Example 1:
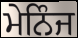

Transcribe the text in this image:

ਮੇਨਿੰਜ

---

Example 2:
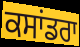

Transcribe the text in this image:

ਕਸਾਂਡਰਾ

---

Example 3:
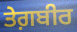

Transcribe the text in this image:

ਤੇਗ਼ਬੀਰ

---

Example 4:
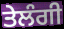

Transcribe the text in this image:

ਤੇਲੰਗੀ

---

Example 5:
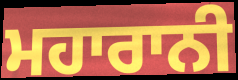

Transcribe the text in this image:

ਮਹਾਰਾਨੀ